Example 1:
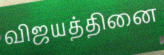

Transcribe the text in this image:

விஜயத்தினை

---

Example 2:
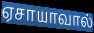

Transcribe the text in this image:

ஏசாயாவால்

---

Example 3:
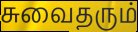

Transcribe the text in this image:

சுவைதரும்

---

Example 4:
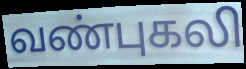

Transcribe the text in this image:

வண்புகலி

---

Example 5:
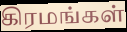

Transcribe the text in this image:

கிரமங்கள்